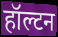
हॉल्टन